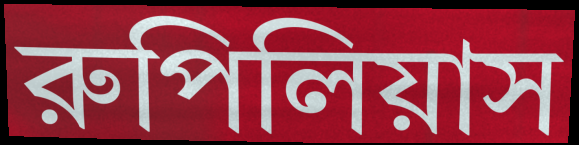
রুপিলিয়াস